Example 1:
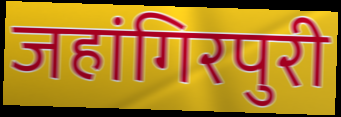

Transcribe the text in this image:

जहांगिरपुरी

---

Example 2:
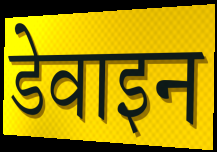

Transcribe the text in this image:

डेवाइन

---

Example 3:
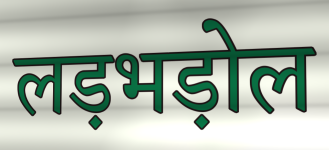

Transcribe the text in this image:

लड़भड़ोल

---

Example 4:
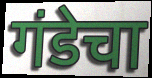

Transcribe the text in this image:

गंडेचा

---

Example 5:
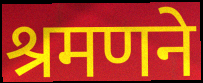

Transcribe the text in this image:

श्रमणने